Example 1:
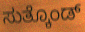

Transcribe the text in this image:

ಸುತ್ಕೊಂಡ್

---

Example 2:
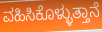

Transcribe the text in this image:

ವಹಿಸಿಕೊಳ್ಳುತ್ತಾನೆ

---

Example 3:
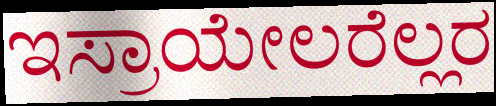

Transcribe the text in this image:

ಇಸ್ರಾಯೇಲರೆಲ್ಲರ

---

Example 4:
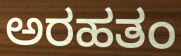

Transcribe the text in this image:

ಅರಹತಂ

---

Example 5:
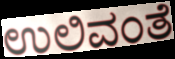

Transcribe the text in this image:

ಉಲಿವಂತೆ